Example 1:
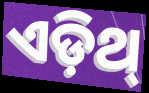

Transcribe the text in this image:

ଏଡ଼ିଥ୍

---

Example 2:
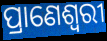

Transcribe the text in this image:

ପ୍ରାଣେଶ୍ୱରୀ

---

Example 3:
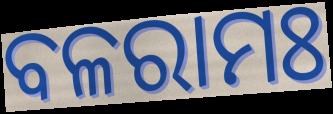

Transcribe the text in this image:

ବଳରାମଃ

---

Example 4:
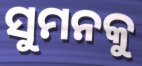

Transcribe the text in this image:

ସୁମନକୁ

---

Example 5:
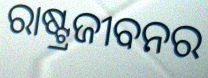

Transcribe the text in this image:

ରାଷ୍ଟ୍ରଜୀବନର